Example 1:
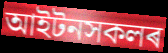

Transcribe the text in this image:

আইটনসকলৰ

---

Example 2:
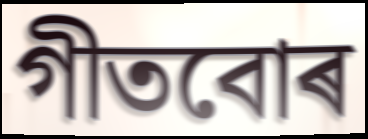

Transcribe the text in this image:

গীতবোৰ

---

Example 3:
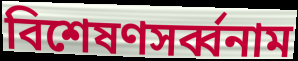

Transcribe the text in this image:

বিশেষণসৰ্ব্বনাম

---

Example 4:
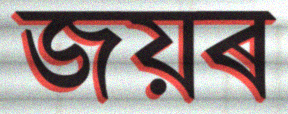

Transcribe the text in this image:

জয়ৰ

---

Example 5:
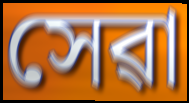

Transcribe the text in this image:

সেৱা